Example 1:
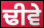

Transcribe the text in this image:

ਢੀਵੇ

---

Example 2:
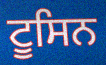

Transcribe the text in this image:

ਟੂਸਿਨ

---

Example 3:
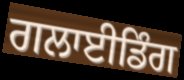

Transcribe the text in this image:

ਗਲਾਈਡਿੰਗ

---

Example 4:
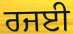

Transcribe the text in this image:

ਰਜਈ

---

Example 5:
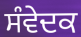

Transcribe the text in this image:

ਸੰਵੇਦਕ